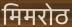
मिमरोठ